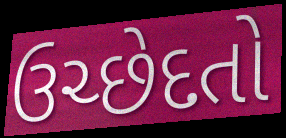
ઉચ્છેદતો